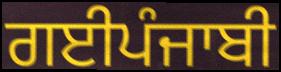
ਗਈਪੰਜਾਬੀ